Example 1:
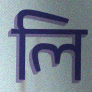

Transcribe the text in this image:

লি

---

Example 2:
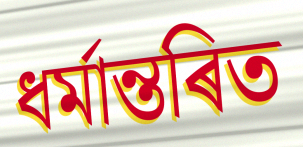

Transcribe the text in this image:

ধৰ্মান্তৰিত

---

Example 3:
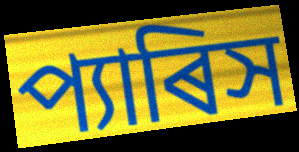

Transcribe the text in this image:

প্যাৰিস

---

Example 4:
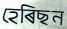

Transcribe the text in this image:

হেৰিছন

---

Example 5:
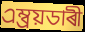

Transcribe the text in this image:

এম্ব্ৰয়ডাৰী